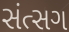
સંત્સગ